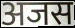
अजस